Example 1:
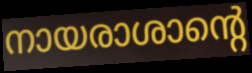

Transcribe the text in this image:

നായരാശാന്റെ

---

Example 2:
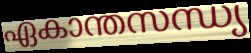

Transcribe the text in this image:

ഏകാന്തസന്ധ്യ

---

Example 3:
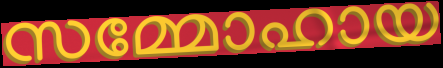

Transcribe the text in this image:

സമ്മോഹായ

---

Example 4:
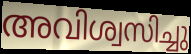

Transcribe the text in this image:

അവിശ്വസിച്ചു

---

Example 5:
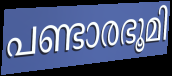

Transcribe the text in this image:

പണ്ടാരഭൂമി